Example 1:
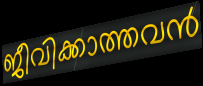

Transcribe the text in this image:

ജീവിക്കാത്തവൻ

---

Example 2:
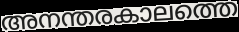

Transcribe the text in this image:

അനന്തരകാലത്തെ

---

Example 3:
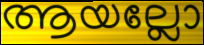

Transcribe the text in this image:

ആയല്ലോ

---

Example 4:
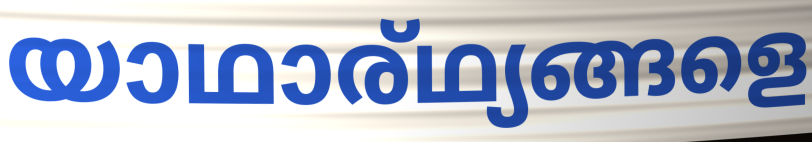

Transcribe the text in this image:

യാഥാര്ഥ്യങ്ങളെ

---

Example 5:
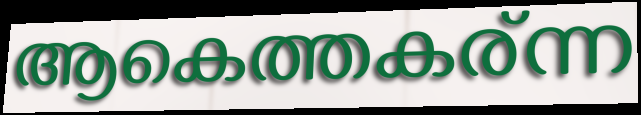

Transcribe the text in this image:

ആകെത്തകര്ന്ന